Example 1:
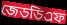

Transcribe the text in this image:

জেডডিএফ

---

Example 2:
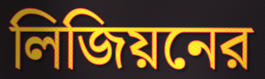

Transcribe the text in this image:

লিজিয়নের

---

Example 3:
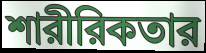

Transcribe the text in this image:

শারীরিকতার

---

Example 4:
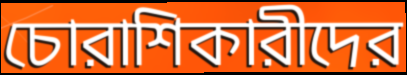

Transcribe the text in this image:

চোরাশিকারীদের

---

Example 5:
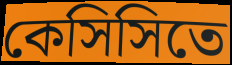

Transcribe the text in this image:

কেসিসিতে